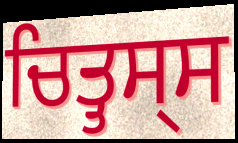
ਚਿਤ੍ਤਸ੍ਸ